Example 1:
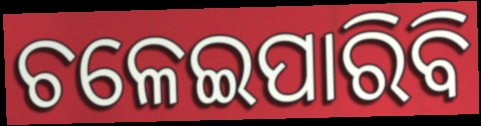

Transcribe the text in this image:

ଚଳେଇପାରିବି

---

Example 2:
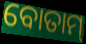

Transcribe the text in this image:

ବୋତାମ୍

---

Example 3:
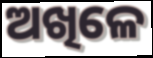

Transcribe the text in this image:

ଅଖିଳେ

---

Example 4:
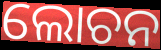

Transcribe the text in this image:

ଲୋଚନ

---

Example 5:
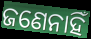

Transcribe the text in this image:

ଜଣେନାହିଁ